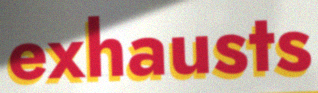
exhausts